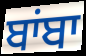
ਬਾਂਬਾ